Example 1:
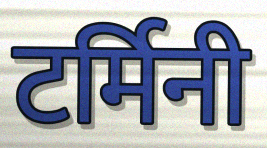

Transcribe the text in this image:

टर्मिनी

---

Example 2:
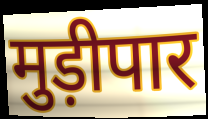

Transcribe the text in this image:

मुड़ीपार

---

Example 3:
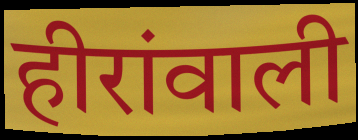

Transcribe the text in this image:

हीरांवाली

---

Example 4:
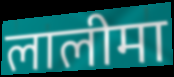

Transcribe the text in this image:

लालीमा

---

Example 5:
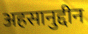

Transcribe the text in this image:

अहसानुद्दीन